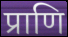
प्राणि